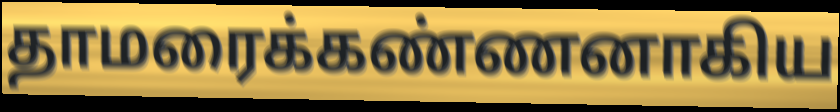
தாமரைக்கண்ணனாகிய